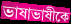
ভাষাভাষীকে